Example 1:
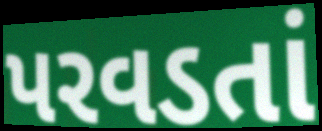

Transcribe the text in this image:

પરવડતાં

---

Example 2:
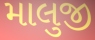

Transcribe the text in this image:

માલુજી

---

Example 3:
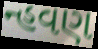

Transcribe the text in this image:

ન્હવણ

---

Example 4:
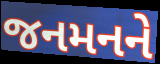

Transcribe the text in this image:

જનમનને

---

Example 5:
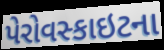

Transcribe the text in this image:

પેરોવસ્કાઇટના